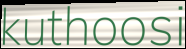
kuthoosi